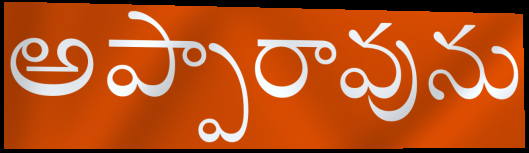
అప్పారావును